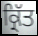
ਕ੍ਰਿੱਤ